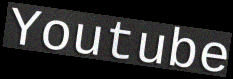
Youtube